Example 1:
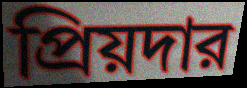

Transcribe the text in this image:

প্রিয়দার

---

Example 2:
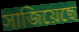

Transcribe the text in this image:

সাজিয়েছে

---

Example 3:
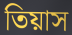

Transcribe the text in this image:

তিয়াস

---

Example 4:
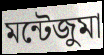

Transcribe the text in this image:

মন্টেজুমা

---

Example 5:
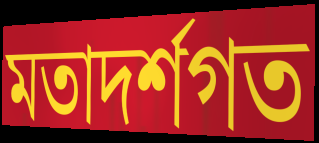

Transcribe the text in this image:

মতাদর্শগত